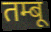
तम्‍बू